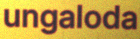
ungaloda